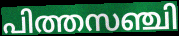
പിത്തസഞ്ചി